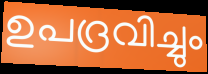
ഉപദ്രവിച്ചും